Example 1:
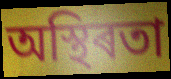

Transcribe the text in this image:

অস্থিৰতা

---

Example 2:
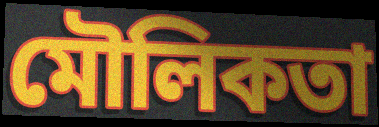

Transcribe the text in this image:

মৌলিকতা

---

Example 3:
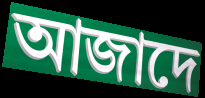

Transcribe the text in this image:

আজাদে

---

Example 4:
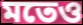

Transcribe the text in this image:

মতেও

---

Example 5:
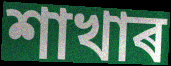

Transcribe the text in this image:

শাখাৰ